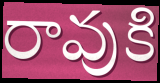
రావుకి